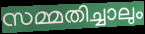
സമ്മതിച്ചാലും